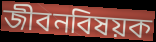
জীবনবিষয়ক